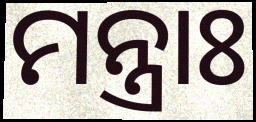
ମନ୍ତ୍ରାଃ